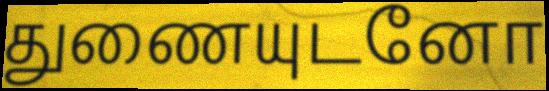
துணையுடனோ